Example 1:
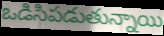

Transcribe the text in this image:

ఒడిసిపడుతున్నాయి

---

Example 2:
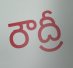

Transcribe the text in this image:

రౌద్రీ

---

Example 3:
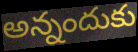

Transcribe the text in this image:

అన్నందుకు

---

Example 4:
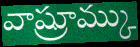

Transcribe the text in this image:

వాష్రూమ్కు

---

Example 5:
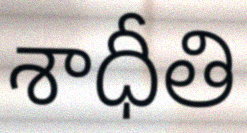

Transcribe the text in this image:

శాధీతి